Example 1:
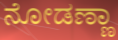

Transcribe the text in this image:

ನೋಡಣ್ಣಾ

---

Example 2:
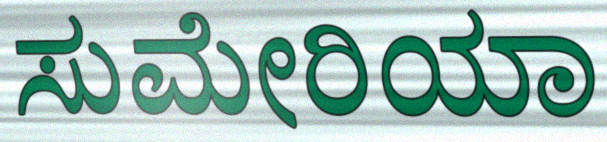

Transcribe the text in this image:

ಸುಮೇರಿಯಾ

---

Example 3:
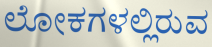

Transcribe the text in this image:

ಲೋಕಗಳಲ್ಲಿರುವ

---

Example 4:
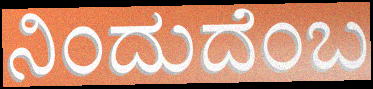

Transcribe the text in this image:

ನಿಂದುದೆಂಬ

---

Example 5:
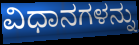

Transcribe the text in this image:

ವಿಧಾನಗಳನ್ನು